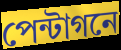
পেন্টাগনে